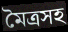
মৈত্রসহ